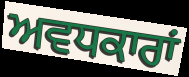
ਅਵਧਕਾਰਾਂ